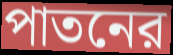
পাতনের